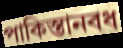
পাকিস্তানবধ